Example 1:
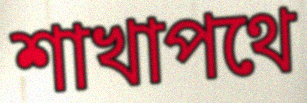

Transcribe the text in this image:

শাখাপথে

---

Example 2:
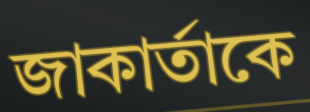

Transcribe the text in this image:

জাকার্তাকে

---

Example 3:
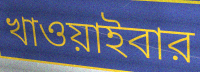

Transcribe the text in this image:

খাওয়াইবার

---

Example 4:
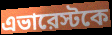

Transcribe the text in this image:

এভারেস্টকে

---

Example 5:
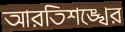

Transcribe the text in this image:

আরতিশঙ্খের